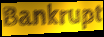
Bankrupt